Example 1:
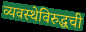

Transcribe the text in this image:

व्यवस्थेविरुद्धची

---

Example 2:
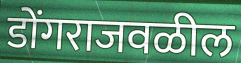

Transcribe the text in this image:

डोंगराजवळील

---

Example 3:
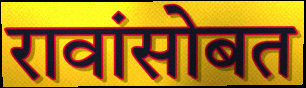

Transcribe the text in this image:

रावांसोबत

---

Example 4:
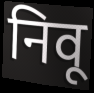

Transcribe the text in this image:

निवू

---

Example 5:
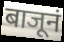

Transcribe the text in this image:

बाजूनं